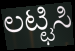
ಲಟ್ಟಿಸಿ